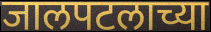
जालपटलाच्या